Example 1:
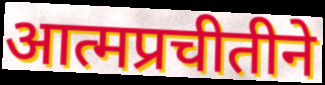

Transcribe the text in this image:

आत्मप्रचीतीने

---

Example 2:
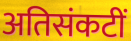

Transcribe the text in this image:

अतिसंकटीं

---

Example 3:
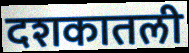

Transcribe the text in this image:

दशकातली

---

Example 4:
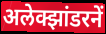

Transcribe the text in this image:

अलेक्झांडरनें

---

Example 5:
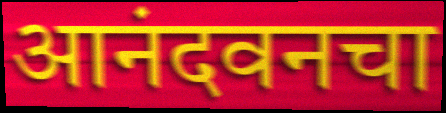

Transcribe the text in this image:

आनंदवनचा